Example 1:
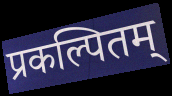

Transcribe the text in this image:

प्रकल्पितम्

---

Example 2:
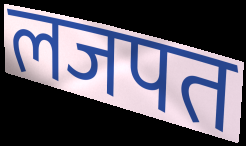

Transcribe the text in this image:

लजपत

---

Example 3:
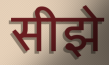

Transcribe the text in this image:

सीझे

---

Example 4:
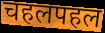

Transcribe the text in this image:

चहलपहल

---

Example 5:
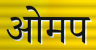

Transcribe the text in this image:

ओमप